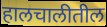
हालचालीतील